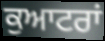
ਕੁਆਟਰਾਂ